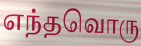
எந்தவொரு